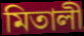
মিতালী